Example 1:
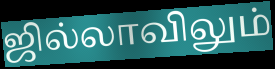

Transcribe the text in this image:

ஜில்லாவிலும்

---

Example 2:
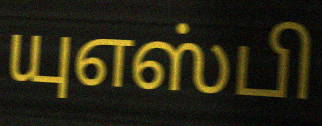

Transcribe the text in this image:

யுஎஸ்பி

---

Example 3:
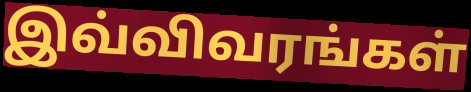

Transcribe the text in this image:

இவ்விவரங்கள்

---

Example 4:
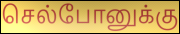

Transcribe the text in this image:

செல்போனுக்கு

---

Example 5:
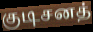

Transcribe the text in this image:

குடிசனத்